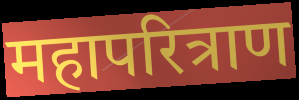
महापरित्राण